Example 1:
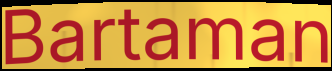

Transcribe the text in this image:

Bartaman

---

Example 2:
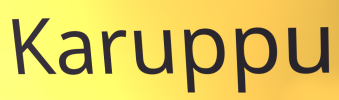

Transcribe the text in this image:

Karuppu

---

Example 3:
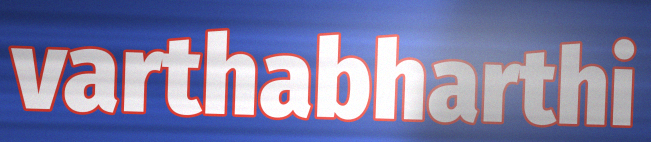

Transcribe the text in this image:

varthabharthi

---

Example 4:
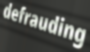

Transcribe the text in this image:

defrauding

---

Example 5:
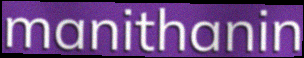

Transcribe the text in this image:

manithanin